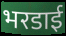
भरडाई